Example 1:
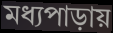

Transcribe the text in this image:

মধ্যপাড়ায়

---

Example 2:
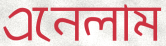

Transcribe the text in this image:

এনেলাম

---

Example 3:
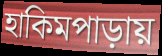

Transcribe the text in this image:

হাকিমপাড়ায়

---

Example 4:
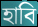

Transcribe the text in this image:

হাবি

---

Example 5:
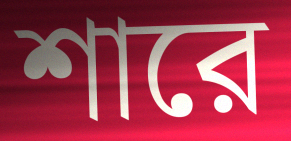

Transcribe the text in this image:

শারে